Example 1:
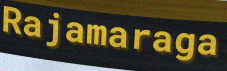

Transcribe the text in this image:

Rajamaraga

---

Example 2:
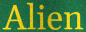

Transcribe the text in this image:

Alien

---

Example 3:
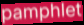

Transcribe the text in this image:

pamphlet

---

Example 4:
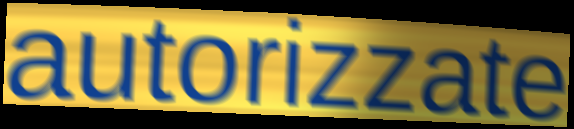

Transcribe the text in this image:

autorizzate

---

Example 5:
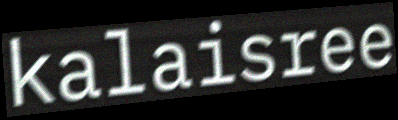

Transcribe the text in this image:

kalaisree